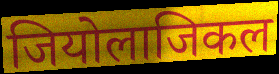
जियोलाजिकल